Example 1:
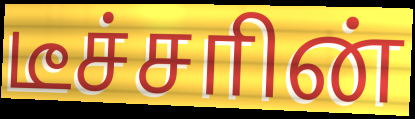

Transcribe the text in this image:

டீச்சரின்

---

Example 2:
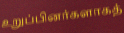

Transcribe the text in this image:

உறுப்பினர்களாகத்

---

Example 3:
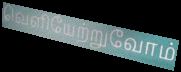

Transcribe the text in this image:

வெளியேற்றுவோம்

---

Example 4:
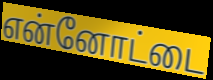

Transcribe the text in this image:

என்னோட்டை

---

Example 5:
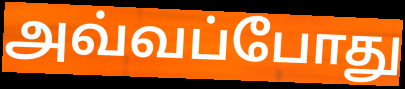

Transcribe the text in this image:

அவ்வப்போது